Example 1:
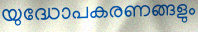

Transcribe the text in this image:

യുദ്ധോപകരണങ്ങളും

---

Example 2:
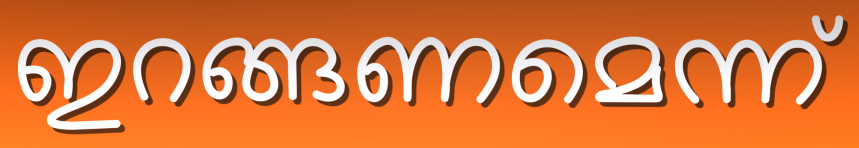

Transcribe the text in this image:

ഇറങ്ങണമെന്ന്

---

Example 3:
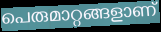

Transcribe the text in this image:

പെരുമാറ്റങ്ങളാണ്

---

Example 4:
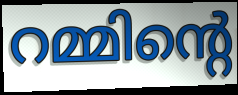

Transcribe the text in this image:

റമ്മിന്റെ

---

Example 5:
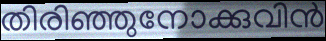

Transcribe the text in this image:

തിരിഞ്ഞുനോക്കുവിൻ